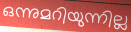
ഒന്നുമറിയുന്നില്ല